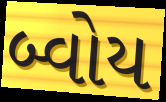
બ્વોય